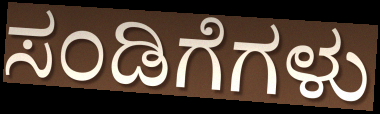
ಸಂಡಿಗೆಗಳು